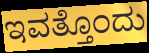
ಇವತ್ತೊಂದು